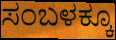
ಸಂಬಳಕ್ಕೂ